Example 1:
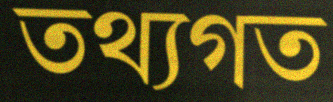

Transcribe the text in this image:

তথ্যগত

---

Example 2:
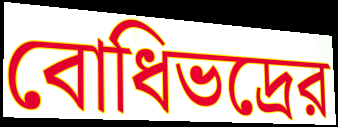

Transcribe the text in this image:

বোধিভদ্রের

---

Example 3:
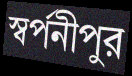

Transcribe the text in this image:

স্বর্পনীপুর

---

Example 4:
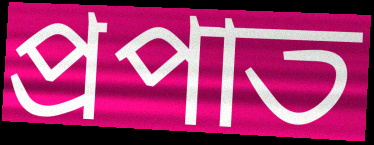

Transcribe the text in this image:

প্রপাত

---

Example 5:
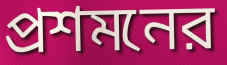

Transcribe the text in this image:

প্রশমনের